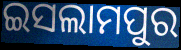
ଇସଲାମପୁର